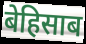
बेहिसाब